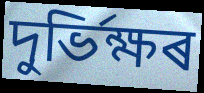
দুৰ্ভিক্ষৰ